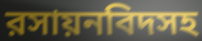
রসায়নবিদসহ